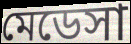
মেডেসা